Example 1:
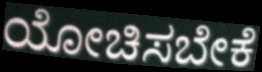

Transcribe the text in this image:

ಯೋಚಿಸಬೇಕೆ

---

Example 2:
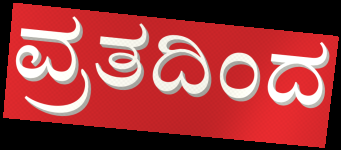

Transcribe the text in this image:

ವ್ರತದಿಂದ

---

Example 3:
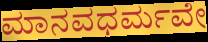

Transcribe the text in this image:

ಮಾನವಧರ್ಮವೇ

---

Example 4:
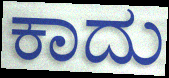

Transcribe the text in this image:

ಕಾದು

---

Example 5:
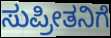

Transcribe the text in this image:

ಸುಪ್ರೀತನಿಗೆ